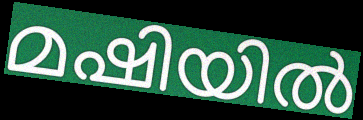
മഷിയിൽ